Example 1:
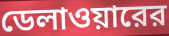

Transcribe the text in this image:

ডেলাওয়ারের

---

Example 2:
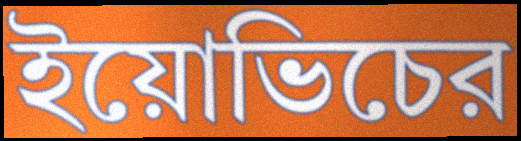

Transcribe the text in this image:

ইয়োভিচের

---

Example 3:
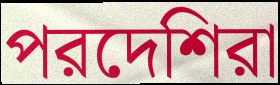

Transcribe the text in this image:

পরদেশিরা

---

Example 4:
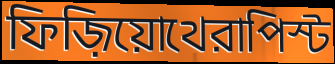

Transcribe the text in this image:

ফিজ়িয়োথেরাপিস্ট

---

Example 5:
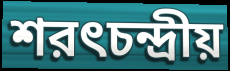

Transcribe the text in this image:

শরৎচন্দ্রীয়